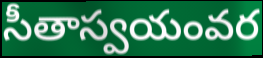
సీతాస్వయంవర